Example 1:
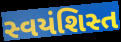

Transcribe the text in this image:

સ્વયંશિસ્ત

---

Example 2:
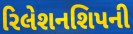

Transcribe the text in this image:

રિલેશનશિપની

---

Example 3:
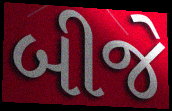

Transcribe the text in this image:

બીજે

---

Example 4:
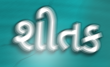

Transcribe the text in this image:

શીતક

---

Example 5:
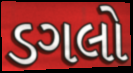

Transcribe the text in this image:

ડગલો